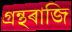
গ্ৰন্থৰাজি